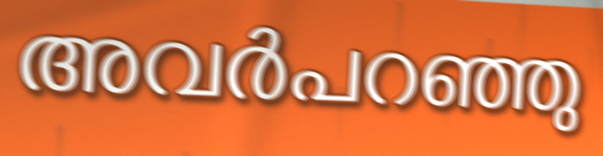
അവർപറഞ്ഞു